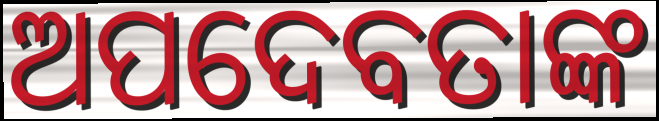
ଅପଦେବତାଙ୍କ